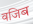
वजिब